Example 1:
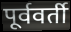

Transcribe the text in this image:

पूर्ववर्ती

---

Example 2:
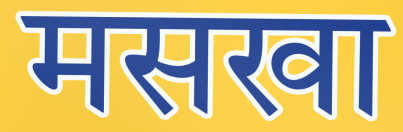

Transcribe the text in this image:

मसखा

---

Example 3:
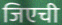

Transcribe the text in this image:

जिएची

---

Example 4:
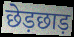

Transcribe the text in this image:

छेड़छाड़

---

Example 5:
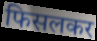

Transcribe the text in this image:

फिसलकर